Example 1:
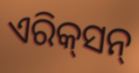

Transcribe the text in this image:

ଏରିକ୍‌ସନ୍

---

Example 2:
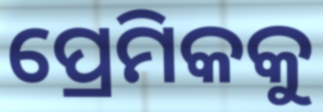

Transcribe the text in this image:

ପ୍ରେମିକକୁ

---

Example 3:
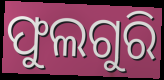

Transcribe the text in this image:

ଫୁଲଗୁରି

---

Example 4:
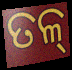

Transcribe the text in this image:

ତଳ୍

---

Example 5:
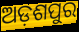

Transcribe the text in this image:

ଅଡ଼ଶପୁର